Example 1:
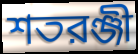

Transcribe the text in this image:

শতরঞ্জী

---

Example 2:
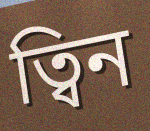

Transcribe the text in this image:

ত্বিন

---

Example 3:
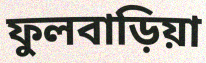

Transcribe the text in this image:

ফুলবাড়িয়া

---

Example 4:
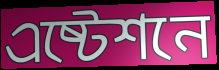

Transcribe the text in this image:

এষ্টেশনে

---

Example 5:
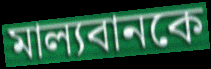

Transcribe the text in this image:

মাল্যবানকে